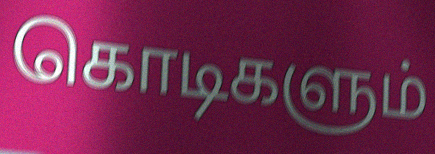
கொடிகளும்